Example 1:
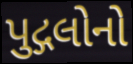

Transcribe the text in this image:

પુદ્ગલોનો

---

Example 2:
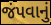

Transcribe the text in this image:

જંપવાનું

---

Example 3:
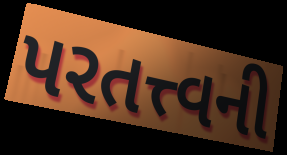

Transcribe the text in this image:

પરતત્ત્વની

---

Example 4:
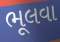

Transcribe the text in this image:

ભૂલવા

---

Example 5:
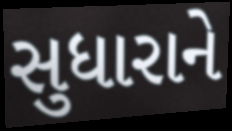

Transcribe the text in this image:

સુધારાને